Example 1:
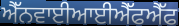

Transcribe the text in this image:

ਐੱਨਵਾਈਆਈਐੱਫਐੱਫ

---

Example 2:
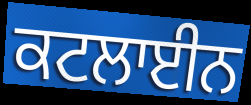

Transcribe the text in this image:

ਕਟਲਾਈਨ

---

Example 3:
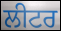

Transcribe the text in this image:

ਲੀਟਰ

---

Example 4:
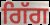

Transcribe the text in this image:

ਗਿੱਗ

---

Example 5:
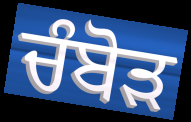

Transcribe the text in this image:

ਚੰਬੋੜ